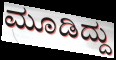
ಮೂಡಿದ್ದು